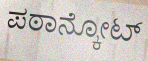
ಪಠಾನ್ಕೋಟ್